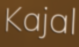
Kajal